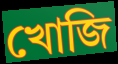
খোজি